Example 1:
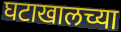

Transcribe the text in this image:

घटाखालच्या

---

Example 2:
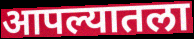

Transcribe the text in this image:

आपल्यातला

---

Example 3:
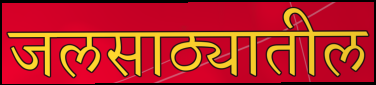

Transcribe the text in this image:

जलसाठ्यातील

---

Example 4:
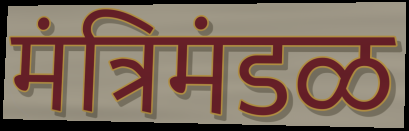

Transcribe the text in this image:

मंत्रिमंडळ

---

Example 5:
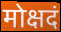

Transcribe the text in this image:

मोक्षदं